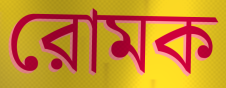
রোমক